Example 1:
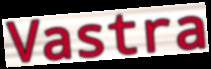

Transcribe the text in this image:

Vastra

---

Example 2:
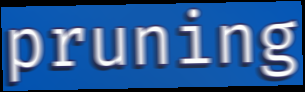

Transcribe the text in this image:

pruning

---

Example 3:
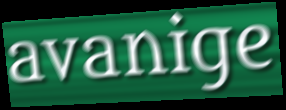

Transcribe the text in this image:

avanige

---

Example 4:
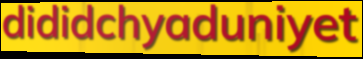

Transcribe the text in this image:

dididchyaduniyet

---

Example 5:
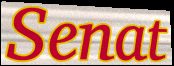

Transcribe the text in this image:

Senat